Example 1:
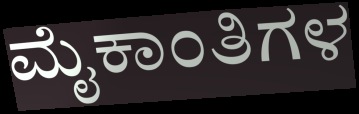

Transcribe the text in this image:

ಮೈಕಾಂತಿಗಳ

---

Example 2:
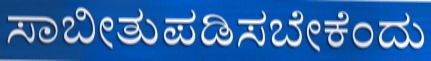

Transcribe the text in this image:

ಸಾಬೀತುಪಡಿಸಬೇಕೆಂದು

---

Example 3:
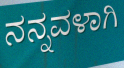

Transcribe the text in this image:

ನನ್ನವಳಾಗಿ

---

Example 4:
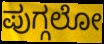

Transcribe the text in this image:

ಪುಗ್ಗಲೋ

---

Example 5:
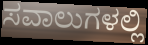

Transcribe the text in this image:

ಸವಾಲುಗಳಲ್ಲಿ